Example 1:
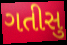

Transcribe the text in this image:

ગતીસુ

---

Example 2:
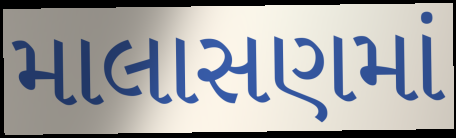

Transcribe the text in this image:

માલાસણમાં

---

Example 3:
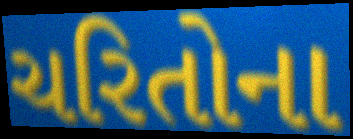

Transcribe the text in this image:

ચરિતોના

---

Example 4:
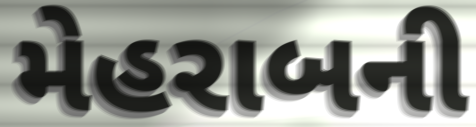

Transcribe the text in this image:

મેહરાબની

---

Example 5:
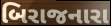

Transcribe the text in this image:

બિરાજનારા